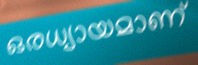
ഒരധ്യായമാണ്